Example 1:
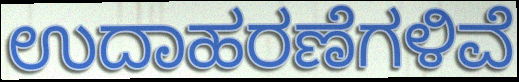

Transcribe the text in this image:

ಉದಾಹರಣೆಗಳಿವೆ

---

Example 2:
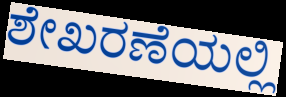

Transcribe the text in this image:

ಶೇಖರಣೆಯಲ್ಲಿ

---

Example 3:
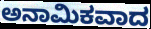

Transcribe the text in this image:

ಅನಾಮಿಕವಾದ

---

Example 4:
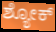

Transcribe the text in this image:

ಶ್ಯೋಕ್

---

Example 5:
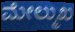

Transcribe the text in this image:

ಮೇಲ್ಮುಖ